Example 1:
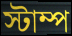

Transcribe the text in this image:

স্টাম্প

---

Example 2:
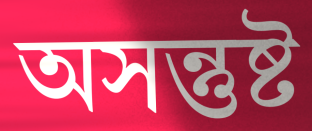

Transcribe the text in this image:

অসন্তুষ্ট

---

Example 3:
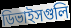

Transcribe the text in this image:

ডিভাইসগুলি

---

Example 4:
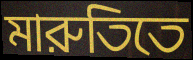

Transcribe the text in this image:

মারুতিতে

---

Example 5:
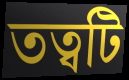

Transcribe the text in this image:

তত্বটি